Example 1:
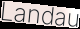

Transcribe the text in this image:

Landau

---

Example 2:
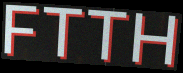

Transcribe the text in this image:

FTTH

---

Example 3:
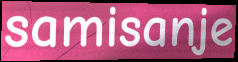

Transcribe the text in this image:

samisanje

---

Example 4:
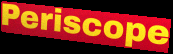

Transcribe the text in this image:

Periscope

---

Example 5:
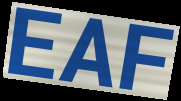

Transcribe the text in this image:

EAF